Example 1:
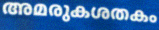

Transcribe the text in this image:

അമരുകശതകം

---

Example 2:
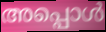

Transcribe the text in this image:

അപ്പൊൾ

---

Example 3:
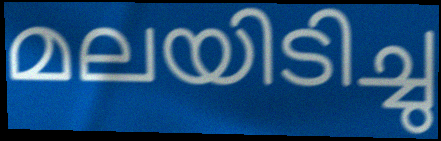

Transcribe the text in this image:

മലയിടിച്ചു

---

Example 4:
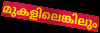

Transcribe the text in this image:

മുകളിലെങ്കിലും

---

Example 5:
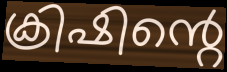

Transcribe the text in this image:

ക്രിഷിന്റെ